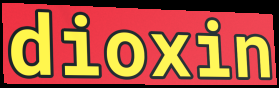
dioxin